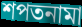
শপতনামা